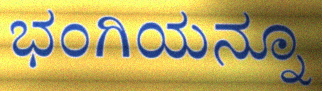
ಭಂಗಿಯನ್ನೂ